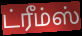
ட்ரீம்ஸ்